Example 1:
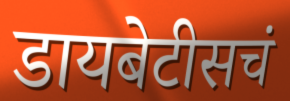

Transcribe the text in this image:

डायबेटीसचं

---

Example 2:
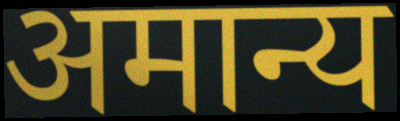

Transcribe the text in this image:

अमान्य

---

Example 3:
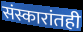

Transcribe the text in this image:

संस्कारांतही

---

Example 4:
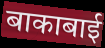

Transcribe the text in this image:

बाकाबाई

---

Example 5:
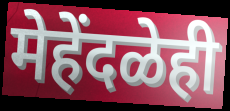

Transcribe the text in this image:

मेहेंदळेही